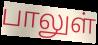
பாலுள்